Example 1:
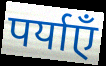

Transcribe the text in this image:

पर्याएँ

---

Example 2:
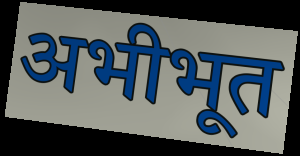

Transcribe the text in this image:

अभीभूत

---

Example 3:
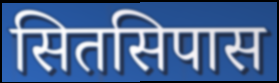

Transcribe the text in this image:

सितसिपास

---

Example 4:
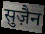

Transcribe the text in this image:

सुज़ैन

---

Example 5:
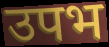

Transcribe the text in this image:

उपभ